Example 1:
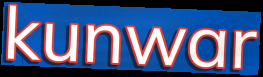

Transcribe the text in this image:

kunwar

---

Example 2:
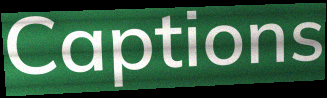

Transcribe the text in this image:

Captions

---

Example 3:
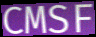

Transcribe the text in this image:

CMSF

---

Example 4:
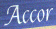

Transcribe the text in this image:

Accor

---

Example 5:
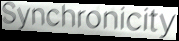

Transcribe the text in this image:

Synchronicity